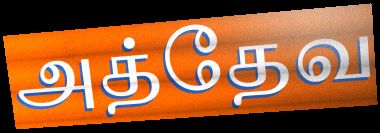
அத்தேவ